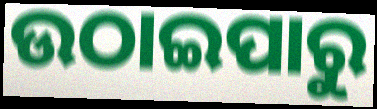
ଉଠାଇପାରୁ